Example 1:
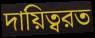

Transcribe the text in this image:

দায়িত্বরত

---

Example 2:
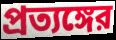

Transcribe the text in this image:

প্রত্যঙ্গের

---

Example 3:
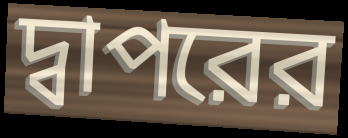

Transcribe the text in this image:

দ্বাপরের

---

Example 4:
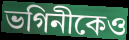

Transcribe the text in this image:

ভগিনীকেও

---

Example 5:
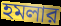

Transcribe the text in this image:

হমলার